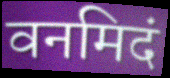
वनमिदं